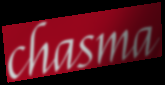
chasma